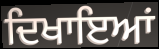
ਦਿਖਾਇਆਂ